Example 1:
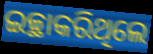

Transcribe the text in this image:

ଇଚ୍ଛାକରିଥିଲେ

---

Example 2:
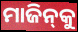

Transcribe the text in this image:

ମାଜିନ୍‌କୁ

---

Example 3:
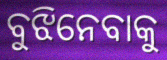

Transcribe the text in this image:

ବୁଝିନେବାକୁ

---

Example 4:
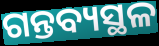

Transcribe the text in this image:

ଗନ୍ତବ୍ୟସ୍ଥଳ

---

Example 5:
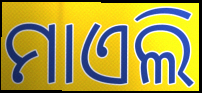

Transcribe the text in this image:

ମାଏଲି